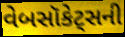
વેબસૉકેટ્સની